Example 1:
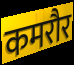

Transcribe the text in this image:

कमरौर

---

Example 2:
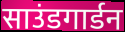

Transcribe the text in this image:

साउंडगार्डन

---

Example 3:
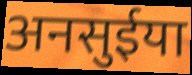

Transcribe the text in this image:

अनसुईया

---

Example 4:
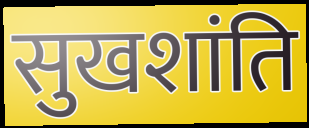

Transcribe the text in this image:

सुखशांति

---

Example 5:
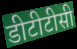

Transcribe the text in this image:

डीटीटीसी